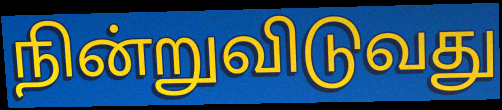
நின்றுவிடுவது